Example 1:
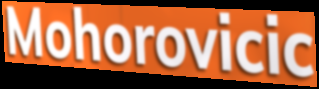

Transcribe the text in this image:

Mohorovicic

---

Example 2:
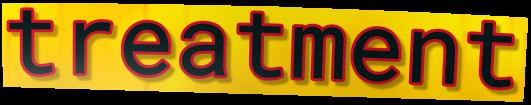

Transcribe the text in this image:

treatment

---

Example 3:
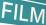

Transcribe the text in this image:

FILM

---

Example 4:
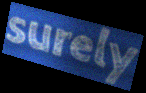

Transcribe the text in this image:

surely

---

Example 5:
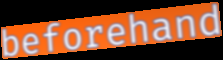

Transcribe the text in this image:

beforehand